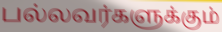
பல்லவர்களுக்கும்